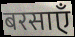
बरसाएँ